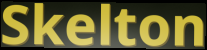
Skelton